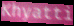
Khyatti